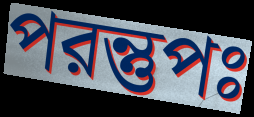
পরন্তুপঃ